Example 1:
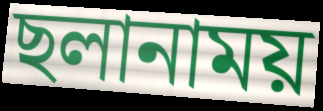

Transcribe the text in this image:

ছলানাময়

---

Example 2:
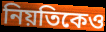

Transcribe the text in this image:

নিয়তিকেও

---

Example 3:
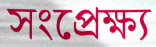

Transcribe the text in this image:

সংপ্রেক্ষ্য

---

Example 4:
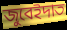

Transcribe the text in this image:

জুবেইদাত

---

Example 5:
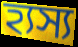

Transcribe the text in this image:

হ্যস্য